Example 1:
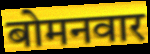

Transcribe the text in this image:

बोमनवार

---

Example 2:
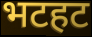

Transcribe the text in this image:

भटहट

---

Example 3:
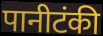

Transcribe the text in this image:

पानीटंकी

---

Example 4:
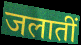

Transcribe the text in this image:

जलातीं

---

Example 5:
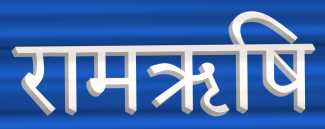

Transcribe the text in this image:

रामऋषि